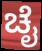
ಚೈ